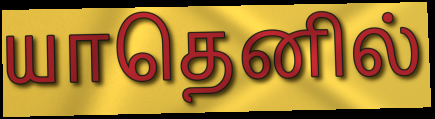
யாதெனில்